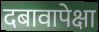
दबावापेक्षा